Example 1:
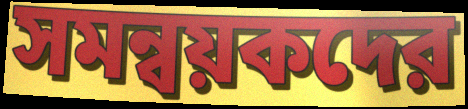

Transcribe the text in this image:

সমন্বয়কদের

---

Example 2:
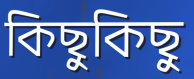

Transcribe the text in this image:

কিছুকিছু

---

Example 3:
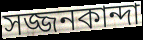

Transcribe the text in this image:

সজ্জনকান্দা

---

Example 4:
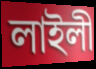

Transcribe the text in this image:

লাইলী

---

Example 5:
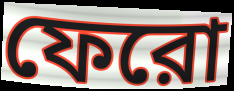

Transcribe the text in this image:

ফেরো